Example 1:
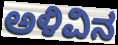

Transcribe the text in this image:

ಅಳಿವಿನ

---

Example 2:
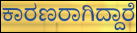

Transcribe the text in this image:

ಕಾರಣರಾಗಿದ್ದಾರೆ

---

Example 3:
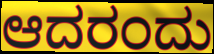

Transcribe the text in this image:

ಆದರಂದು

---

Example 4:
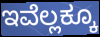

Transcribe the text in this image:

ಇವೆಲ್ಲಕ್ಕೂ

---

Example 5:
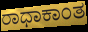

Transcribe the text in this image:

ರಾಧಾಕಾಂತ